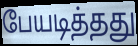
பேயடித்தது